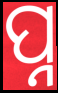
ପ୍ନ